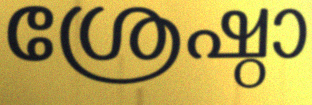
ശ്രേഷ്ഠാ